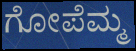
ಗೋಪೆಮ್ಮ